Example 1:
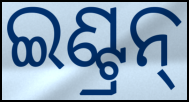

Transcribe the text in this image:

ଇଣ୍ଟ୍ରନ୍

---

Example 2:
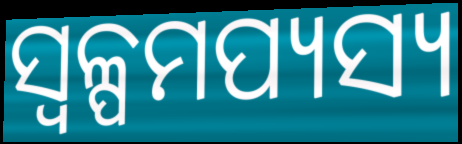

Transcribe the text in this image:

ସ୍ୱଳ୍ପମପ୍ୟସ୍ୟ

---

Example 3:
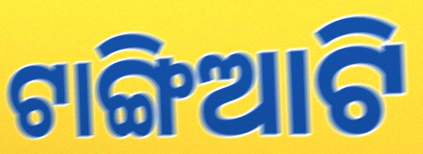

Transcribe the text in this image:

ଟାଙ୍ଗିଆଟି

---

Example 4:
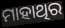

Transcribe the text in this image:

ମାହାଥିର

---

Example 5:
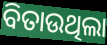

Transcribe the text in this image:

ବିତାଉଥିଲା